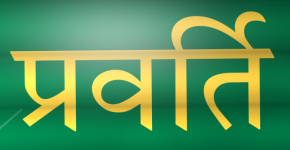
प्रवर्ति